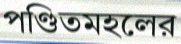
পণ্ডিতমহলের